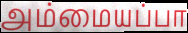
அம்மையப்பா